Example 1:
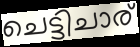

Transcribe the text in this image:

ചെട്ടിചാര്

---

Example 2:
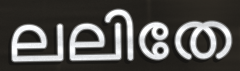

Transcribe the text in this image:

ലലിതേ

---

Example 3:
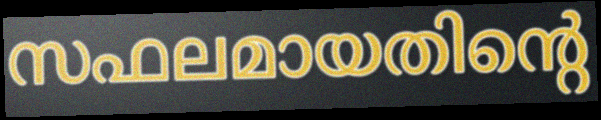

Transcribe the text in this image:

സഫലമായതിന്റെ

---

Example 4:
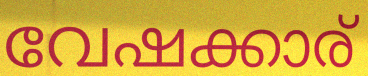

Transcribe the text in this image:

വേഷക്കാര്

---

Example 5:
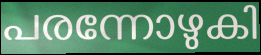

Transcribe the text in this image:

പരന്നോഴുകി